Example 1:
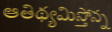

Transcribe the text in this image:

ఆతిథ్యమిస్తోన్న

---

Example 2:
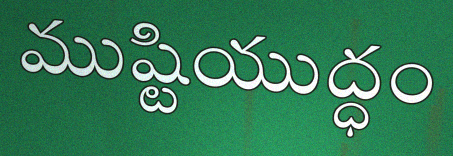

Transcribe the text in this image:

ముష్టియుద్ధం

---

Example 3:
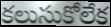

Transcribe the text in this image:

కలుసుకోలేక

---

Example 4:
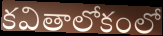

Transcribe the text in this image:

కవితాలోకంలో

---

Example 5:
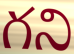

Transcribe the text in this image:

గని